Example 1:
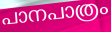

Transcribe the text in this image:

പാനപാത്രം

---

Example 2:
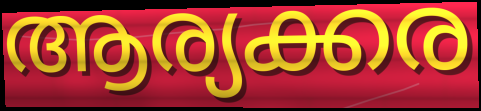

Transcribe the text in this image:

ആര്യക്കര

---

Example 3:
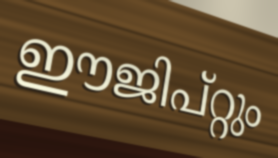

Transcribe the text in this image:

ഈജിപ്റ്റും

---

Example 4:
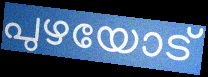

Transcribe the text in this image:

പുഴയോട്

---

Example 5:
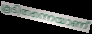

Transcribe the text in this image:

കൂടിതന്നെയാണ്